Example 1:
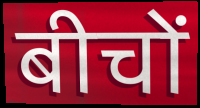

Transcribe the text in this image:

बीचों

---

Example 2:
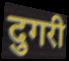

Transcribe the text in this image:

दुगरी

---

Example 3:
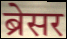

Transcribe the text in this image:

ब्रेसर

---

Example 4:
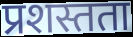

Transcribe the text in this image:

प्रशस्तता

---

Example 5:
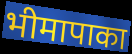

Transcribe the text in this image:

भीमापाका